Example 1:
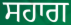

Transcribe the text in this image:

ਸਹਾਗ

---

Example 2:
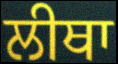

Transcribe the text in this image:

ਲੀਥਾ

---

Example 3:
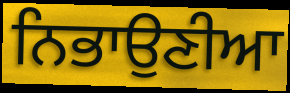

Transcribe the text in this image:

ਨਿਭਾਉਣੀਆ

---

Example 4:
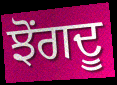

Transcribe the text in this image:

ਝੋਂਗਦੂ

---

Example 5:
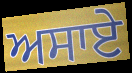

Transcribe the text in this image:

ਅਸਾਏ